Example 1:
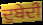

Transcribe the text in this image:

ਦੁਬੇਦੀ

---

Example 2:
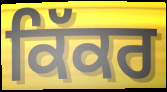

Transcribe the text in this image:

ਕਿੱਕਰ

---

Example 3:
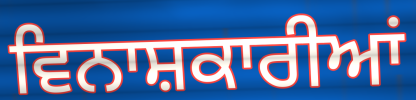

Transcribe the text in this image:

ਵਿਨਾਸ਼ਕਾਰੀਆਂ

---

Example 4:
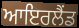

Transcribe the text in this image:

ਆਇਰਲੈੰਡ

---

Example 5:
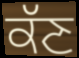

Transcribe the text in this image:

ਕੱਣ